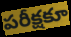
పరీక్షకూ